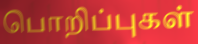
பொறிப்புகள்